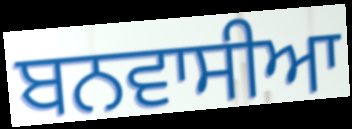
ਬਨਵਾਸੀਆ